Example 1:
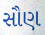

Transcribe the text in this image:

સૌણ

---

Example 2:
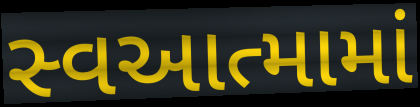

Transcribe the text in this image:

સ્વઆત્મામાં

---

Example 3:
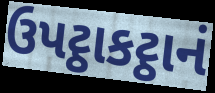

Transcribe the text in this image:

ઉપટ્ઠાકટ્ઠાનં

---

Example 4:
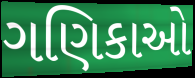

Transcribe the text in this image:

ગણિકાઓ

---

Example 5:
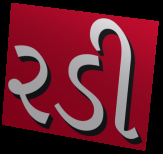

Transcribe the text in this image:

રડી